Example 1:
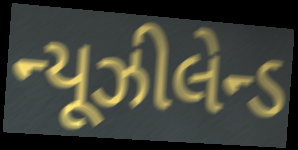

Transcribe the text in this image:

ન્યૂઝીલેન્ડ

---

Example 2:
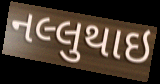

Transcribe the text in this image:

નલ્લુથાઇ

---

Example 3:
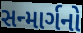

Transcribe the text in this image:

સન્માર્ગનો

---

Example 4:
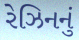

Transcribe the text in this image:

રેઝિનનું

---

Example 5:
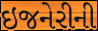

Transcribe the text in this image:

ઇજનેરીની